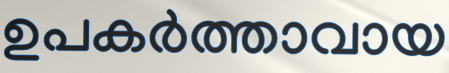
ഉപകർത്താവായ